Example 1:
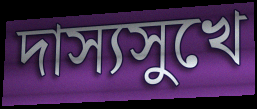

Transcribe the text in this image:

দাস্যসুখে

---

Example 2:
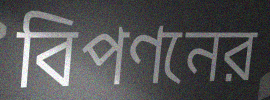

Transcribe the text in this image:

বিপণনের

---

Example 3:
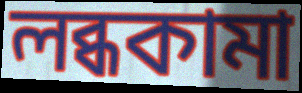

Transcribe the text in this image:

লব্ধকামা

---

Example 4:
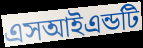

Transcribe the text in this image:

এসআইএন্ডটি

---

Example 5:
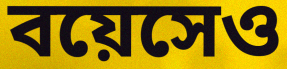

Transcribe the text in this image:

বয়েসেও